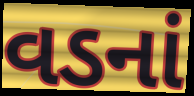
વડનાં